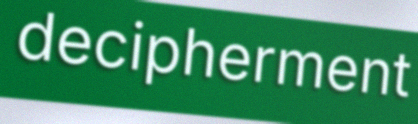
decipherment